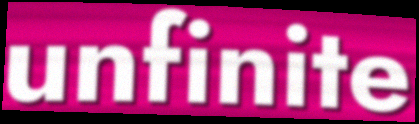
unfinite